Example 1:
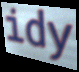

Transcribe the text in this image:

idy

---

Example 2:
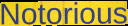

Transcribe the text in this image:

Notorious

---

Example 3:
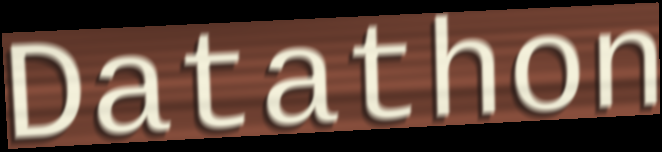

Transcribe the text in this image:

Datathon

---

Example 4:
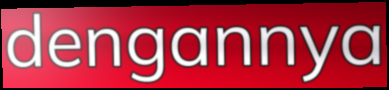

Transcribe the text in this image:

dengannya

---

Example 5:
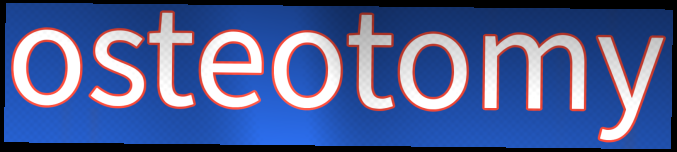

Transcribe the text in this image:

osteotomy